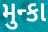
મુન્કા